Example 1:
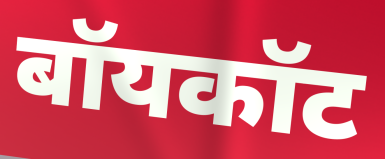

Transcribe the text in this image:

बॉयकॉट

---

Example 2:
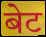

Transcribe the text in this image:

बेट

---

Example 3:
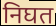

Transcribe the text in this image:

निघत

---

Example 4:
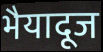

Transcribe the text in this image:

भैयादूज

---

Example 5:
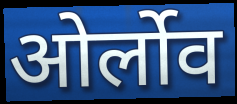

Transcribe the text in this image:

ओर्लोव